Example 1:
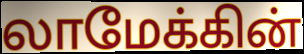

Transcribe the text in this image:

லாமேக்கின்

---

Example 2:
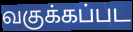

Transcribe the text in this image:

வகுக்கப்பட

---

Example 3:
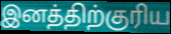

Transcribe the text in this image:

இனத்திற்குரிய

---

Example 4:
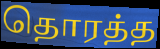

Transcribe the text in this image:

தொரத்த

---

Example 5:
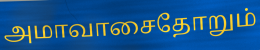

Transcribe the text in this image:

அமாவாசைதோறும்